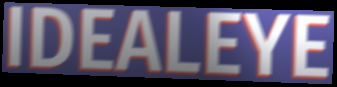
IDEALEYE